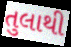
તુલાથી